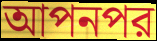
আপনপর